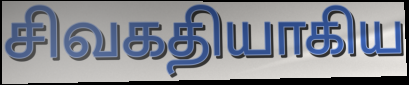
சிவகதியாகிய